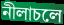
নীলাচলে